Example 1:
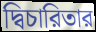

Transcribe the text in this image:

দ্বিচারিতার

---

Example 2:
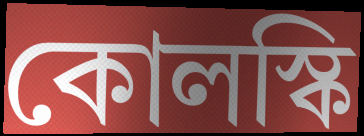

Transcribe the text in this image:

কোলস্কি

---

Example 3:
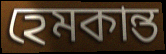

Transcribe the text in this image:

হেমকান্ত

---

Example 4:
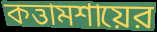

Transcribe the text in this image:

কত্তামশায়ের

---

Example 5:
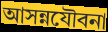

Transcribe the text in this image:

আসন্নযৌবনা